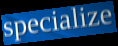
specialize